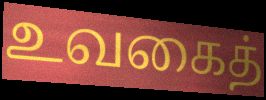
உவகைத்